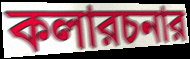
কলারচনার